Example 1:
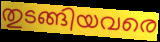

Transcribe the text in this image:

തുടങ്ങിയവരെ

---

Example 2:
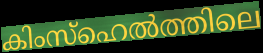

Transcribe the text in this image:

കിംസ്ഹെൽത്തിലെ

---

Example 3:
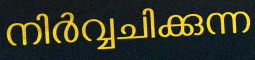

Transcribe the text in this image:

നിർവ്വചിക്കുന്ന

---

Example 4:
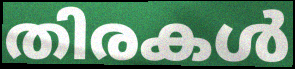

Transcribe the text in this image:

തിരകൾ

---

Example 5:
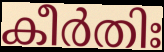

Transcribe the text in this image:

കീർതിഃ